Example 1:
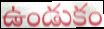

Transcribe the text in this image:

ఉండుకం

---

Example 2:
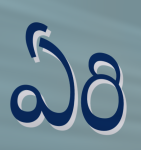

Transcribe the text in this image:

ఏరి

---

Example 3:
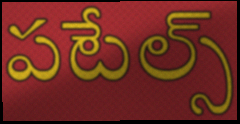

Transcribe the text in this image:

పటేల్స్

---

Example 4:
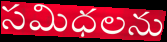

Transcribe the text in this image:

సమిధలను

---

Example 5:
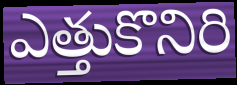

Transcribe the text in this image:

ఎత్తుకొనిరి